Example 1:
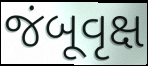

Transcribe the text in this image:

જંબૂવૃક્ષ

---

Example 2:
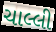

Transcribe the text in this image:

ચાલ્લી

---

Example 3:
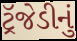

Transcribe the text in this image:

ટ્રૅજેડીનું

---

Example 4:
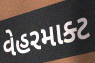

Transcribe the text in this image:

વેહરમાક્ટ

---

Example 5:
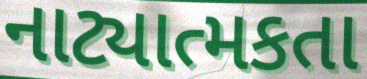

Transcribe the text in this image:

નાટ્યાત્મકતા